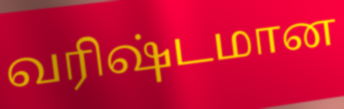
வரிஷ்டமான